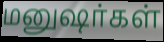
மனுஷர்கள்